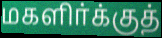
மகளிர்க்குத்